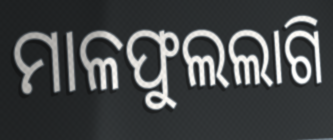
ମାଳଫୁଲଲାଗି